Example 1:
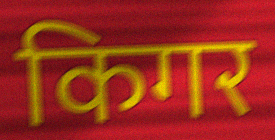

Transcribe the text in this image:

किगर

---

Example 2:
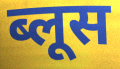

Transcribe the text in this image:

ब्लूस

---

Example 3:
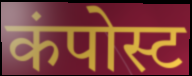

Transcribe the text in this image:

कंपोस्ट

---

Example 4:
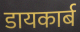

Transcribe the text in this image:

डायकार्ब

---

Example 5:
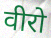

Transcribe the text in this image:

वीरो